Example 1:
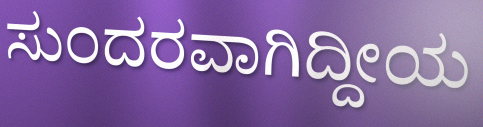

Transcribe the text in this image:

ಸುಂದರವಾಗಿದ್ದೀಯ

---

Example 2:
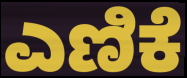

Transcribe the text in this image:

ಎಣಿಕೆ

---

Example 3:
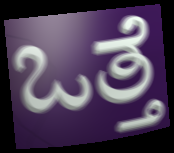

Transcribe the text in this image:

ಒತ್ತೆ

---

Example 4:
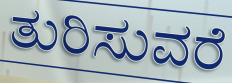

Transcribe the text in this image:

ತುರಿಸುವರೆ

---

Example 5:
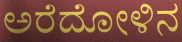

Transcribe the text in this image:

ಅರೆದೋಳಿನ